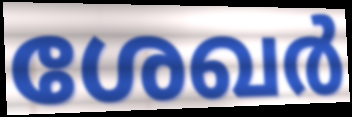
ശേഖർ